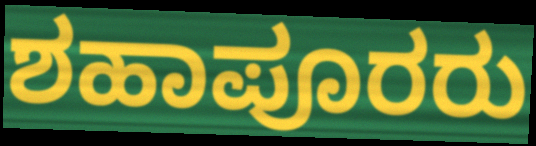
ಶಹಾಪೂರರು